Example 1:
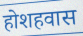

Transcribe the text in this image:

होशहवास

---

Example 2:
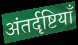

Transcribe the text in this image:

अंतर्दृष्टियाँ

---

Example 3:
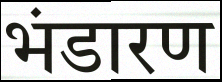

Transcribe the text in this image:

भंडारण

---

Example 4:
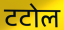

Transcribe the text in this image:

टटोल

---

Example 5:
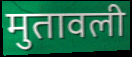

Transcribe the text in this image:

मुतावली